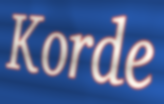
Korde